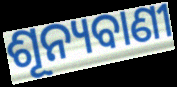
ଶୂନ୍ୟବାଣୀ